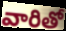
వారితో